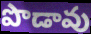
పొడావు